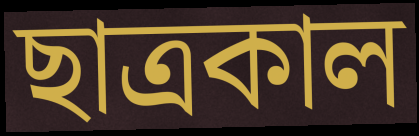
ছাত্রকাল